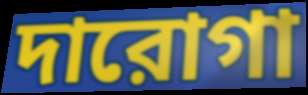
দারোগা